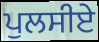
ਪੁਲਸੀਏ